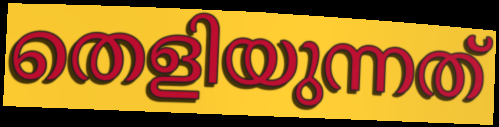
തെളിയുന്നത്